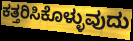
ಕತ್ತರಿಸಿಕೊಳ್ಳುವುದು